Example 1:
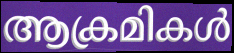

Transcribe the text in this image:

ആക്രമികൾ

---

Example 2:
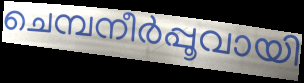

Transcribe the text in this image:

ചെമ്പനീർപ്പൂവായി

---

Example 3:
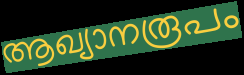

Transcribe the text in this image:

ആഖ്യാനരൂപം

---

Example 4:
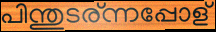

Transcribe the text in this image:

പിന്തുടര്ന്നപ്പോള്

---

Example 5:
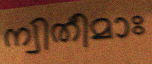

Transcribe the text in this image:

ന്വിതീമാഃ